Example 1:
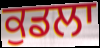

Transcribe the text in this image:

ਕੁਡਲਾ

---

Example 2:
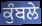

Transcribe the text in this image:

ਕੁੰਬਲੇ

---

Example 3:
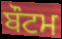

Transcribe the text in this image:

ਬੌਟਮ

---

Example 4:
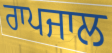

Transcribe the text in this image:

ਰਾਪਜਾਲ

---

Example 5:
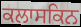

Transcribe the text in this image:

ਕਲਾਸਕਿਨ